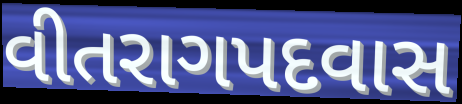
વીતરાગપદવાસ